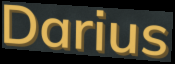
Darius